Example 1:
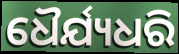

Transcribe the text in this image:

ଧୈର୍ଯ୍ୟଧରି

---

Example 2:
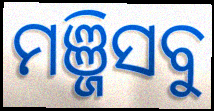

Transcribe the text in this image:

ମଞ୍ଜିସବୁ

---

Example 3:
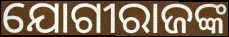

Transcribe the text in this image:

ଯୋଗୀରାଜଙ୍କ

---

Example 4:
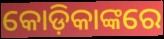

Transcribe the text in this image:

କୋଡ଼ିକାଙ୍କରେ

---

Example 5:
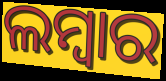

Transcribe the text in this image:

ଲମ୍ୱାର